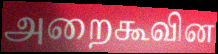
அறைகூவின